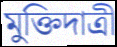
মুক্তিদাত্রী